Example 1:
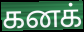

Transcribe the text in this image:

கனக்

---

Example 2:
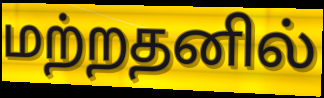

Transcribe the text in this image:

மற்றதனில்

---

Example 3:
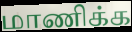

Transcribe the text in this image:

மாணிக்க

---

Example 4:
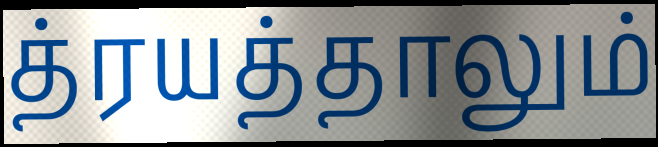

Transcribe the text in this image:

த்ரயத்தாலும்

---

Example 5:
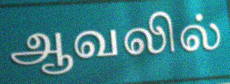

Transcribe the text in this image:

ஆவலில்